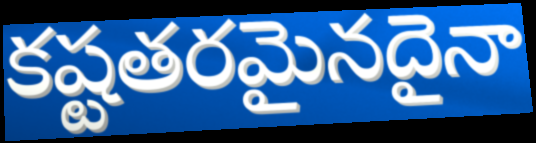
కష్టతరమైనదైనా